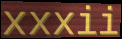
xxxii